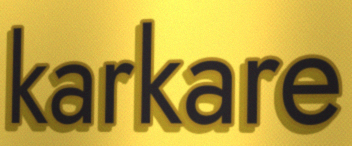
karkare